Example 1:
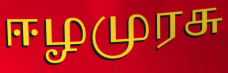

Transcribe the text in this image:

ஈழமுரசு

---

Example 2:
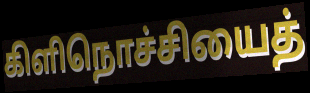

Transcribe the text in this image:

கிளிநொச்சியைத்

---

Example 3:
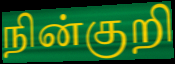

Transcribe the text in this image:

நின்குறி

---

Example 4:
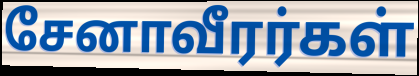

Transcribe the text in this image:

சேனாவீரர்கள்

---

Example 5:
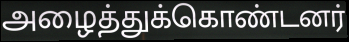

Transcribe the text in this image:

அழைத்துக்கொண்டனர்